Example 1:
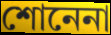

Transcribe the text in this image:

শোনেনা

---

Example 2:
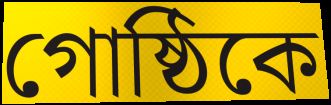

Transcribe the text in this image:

গোষ্ঠিকে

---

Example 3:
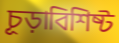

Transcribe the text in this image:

চূড়াবিশিষ্ট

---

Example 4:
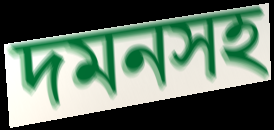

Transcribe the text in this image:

দমনসহ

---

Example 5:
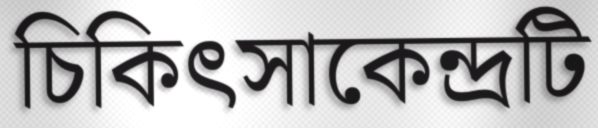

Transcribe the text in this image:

চিকিৎসাকেন্দ্রটি